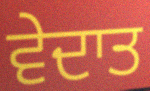
ਵੇਦਾਤ